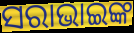
ସରାଭାଇଙ୍କ